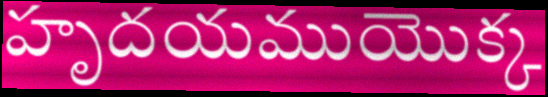
హృదయముయొక్క